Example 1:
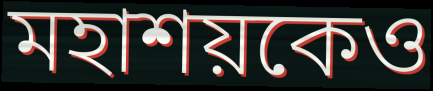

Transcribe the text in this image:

মহাশয়কেও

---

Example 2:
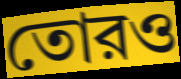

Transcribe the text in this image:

তোরও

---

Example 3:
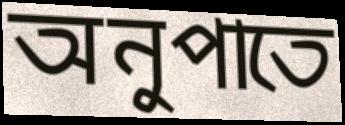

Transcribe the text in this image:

অনুপাতে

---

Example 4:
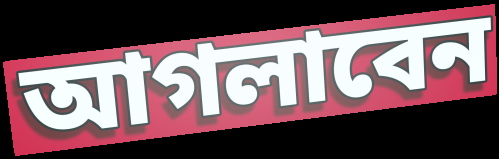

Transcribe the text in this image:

আগলাবেন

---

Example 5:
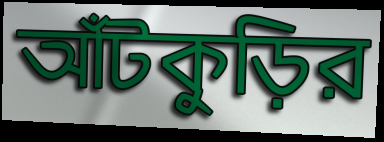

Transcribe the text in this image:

আঁটকুড়ির